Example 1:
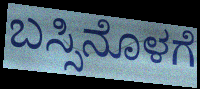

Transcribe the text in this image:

ಬಸ್ಸಿನೊಳಗೆ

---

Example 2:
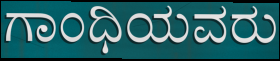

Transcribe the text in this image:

ಗಾಂಧಿಯವರು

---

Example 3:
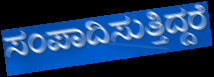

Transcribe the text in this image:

ಸಂಪಾದಿಸುತ್ತಿದ್ದರೆ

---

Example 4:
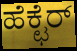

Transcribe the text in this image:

ಹೆಕ್ಟೆರ್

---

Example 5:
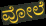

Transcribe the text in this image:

ವೋಲೆ